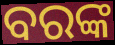
ବରଙ୍କ